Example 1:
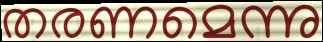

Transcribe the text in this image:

തരണമെന്നു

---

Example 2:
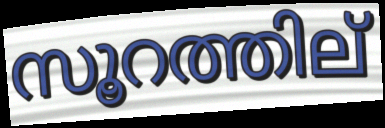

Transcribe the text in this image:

സൂറത്തില്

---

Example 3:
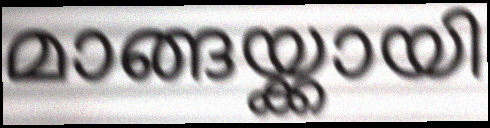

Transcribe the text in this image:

മാങ്ങയ്ക്കായി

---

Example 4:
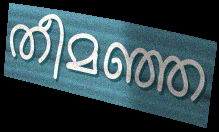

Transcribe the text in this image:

തീമഞ്ഞ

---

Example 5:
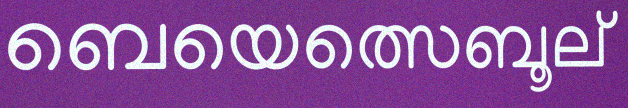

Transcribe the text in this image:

ബെയെത്സെബൂല്